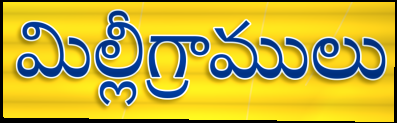
మిల్లీగ్రాములు